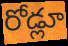
రోడ్లూ